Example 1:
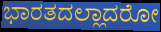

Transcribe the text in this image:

ಭಾರತದಲ್ಲಾದರೋ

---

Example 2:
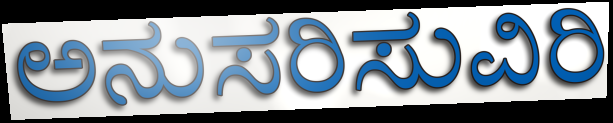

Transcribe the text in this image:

ಅನುಸರಿಸುವಿರಿ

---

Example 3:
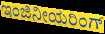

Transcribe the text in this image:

ಇಂಜಿನೀಯರಿಂಗ್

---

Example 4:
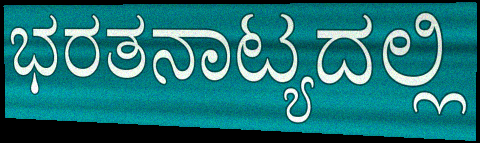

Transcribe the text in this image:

ಭರತನಾಟ್ಯದಲ್ಲಿ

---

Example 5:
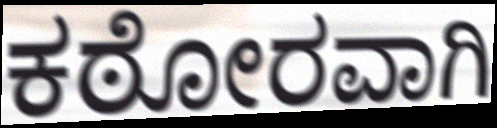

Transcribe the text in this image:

ಕಠೋರವಾಗಿ